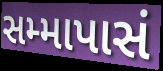
સમ્માપાસં